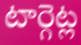
టార్గెట్ల